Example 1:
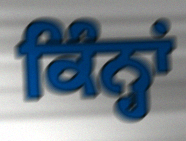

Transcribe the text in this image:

ਕਿੰਨ੍ਹਾਂ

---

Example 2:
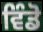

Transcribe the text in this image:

ਵਿੰਡੋ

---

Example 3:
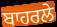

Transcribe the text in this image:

ਬਾਹਰਲੇ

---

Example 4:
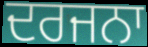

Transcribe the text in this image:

ਦਰਜਨਾ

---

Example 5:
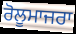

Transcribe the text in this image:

ਰੋਲੂਮਾਜਰਾ